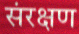
संरक्षण